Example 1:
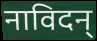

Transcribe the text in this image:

नाविदन्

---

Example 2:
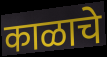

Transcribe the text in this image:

काळाचे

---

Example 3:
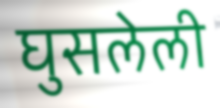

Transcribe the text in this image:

घुसलेली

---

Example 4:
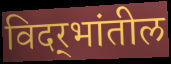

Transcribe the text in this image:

विदर्भांतील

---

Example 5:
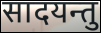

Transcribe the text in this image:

सादयन्तु